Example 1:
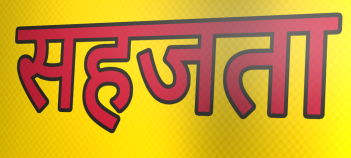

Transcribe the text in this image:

सहजता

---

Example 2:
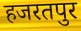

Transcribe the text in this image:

हजरतपुर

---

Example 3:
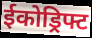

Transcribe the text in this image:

ईकोड्रिफ्ट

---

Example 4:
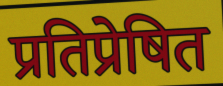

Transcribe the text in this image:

प्रतिप्रेषित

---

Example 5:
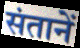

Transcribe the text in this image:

संतानें